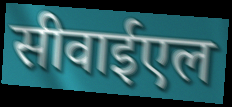
सीवाईएल